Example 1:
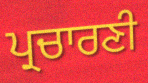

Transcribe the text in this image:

ਪ੍ਰਚਾਰਣੀ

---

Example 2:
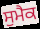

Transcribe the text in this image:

ਸੁਮੈਕ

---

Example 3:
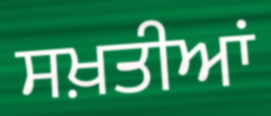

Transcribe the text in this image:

ਸਖ਼ਤੀਆਂ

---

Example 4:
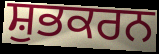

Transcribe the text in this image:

ਸ਼ੁਭਕਰਨ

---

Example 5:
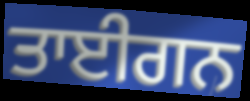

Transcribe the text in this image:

ਤਾਈਗਨ